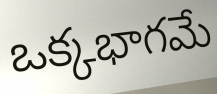
ఒక్కభాగమే